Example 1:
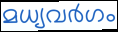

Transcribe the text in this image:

മധ്യവർഗം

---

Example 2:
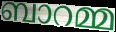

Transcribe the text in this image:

ബാറമ്മ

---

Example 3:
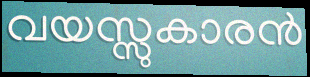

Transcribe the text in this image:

വയസ്സുകാരൻ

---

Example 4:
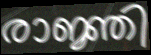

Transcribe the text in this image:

രാജ്ഞി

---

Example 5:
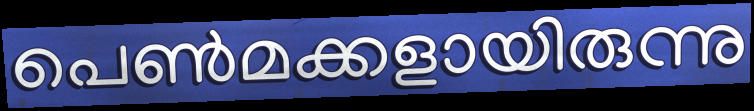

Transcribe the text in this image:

പെൺമക്കളായിരുന്നു